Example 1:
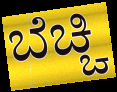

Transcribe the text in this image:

ಬೆಚ್ಚಿ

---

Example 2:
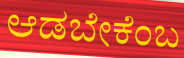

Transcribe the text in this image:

ಆಡಬೇಕೆಂಬ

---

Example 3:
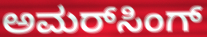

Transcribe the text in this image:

ಅಮರ್‌ಸಿಂಗ್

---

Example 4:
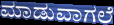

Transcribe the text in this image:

ಮಾಡುವಾಗಲೆ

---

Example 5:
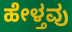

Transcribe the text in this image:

ಹೇಳ್ತವು